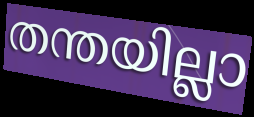
തന്തയില്ലാ